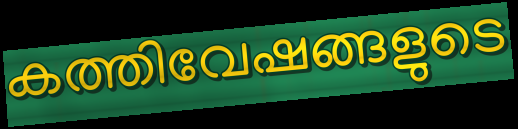
കത്തിവേഷങ്ങളുടെ